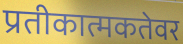
प्रतीकात्मकतेवर